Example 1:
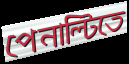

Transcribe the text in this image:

পেনাল্টিতে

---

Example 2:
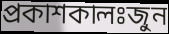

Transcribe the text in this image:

প্রকাশকালঃজুন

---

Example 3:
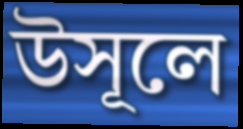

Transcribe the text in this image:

উসূলে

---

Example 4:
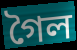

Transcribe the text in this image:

গৈল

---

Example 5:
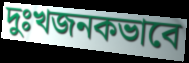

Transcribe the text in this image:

দুঃখজনকভাবে